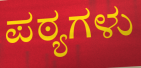
ಪಠ್ಯಗಳು